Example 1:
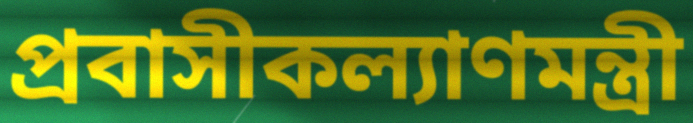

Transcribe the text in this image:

প্রবাসীকল্যাণমন্ত্রী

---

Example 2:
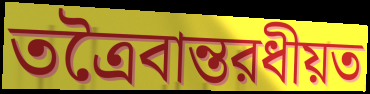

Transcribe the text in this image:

তত্রৈবান্তরধীয়ত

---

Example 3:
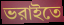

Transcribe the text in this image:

ভরাইতে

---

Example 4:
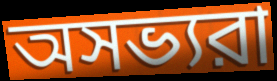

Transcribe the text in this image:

অসভ্যরা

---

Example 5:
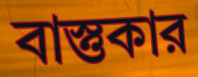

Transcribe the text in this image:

বাস্তুকার